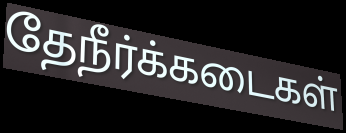
தேநீர்க்கடைகள்